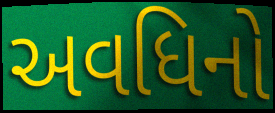
અવધિનો